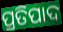
ପ୍ରତିପାଦ